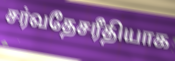
சர்வதேசரீதியாக